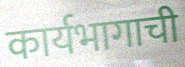
कार्यभागाची